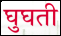
घुघती